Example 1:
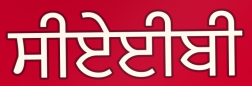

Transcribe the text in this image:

ਸੀਏਈਬੀ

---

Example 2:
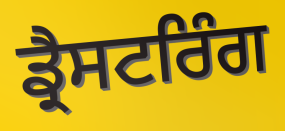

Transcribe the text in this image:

ਡ੍ਰੈਸਟਰਿੰਗ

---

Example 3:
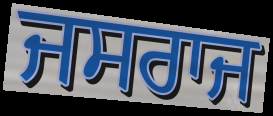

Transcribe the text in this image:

ਜਸਰਾਜ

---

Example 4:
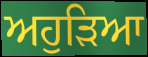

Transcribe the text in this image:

ਅਹੁੜਿਆ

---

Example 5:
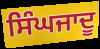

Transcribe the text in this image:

ਸਿੰਘਜਾਦੂ